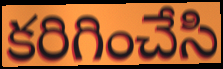
కరిగించేసి